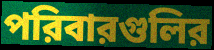
পরিবারগুলির